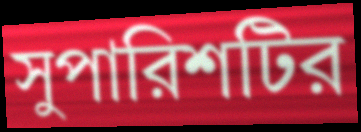
সুপারিশটির